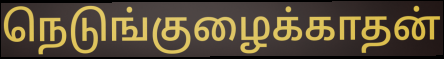
நெடுங்குழைக்காதன்